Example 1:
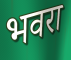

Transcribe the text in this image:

भवरा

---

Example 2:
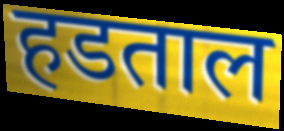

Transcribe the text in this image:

हडताल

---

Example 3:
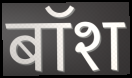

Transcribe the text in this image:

बॉश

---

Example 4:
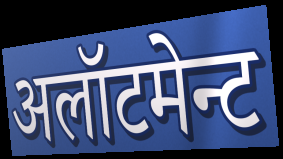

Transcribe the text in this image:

अलॉटमेन्ट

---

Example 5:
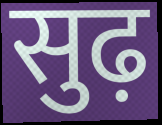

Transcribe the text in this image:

सुढ़